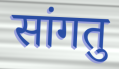
सांगतु